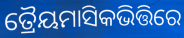
ତ୍ରୈୟମାସିକଭିତ୍ତିରେ